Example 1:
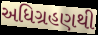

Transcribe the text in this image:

અધિગ્રહણથી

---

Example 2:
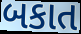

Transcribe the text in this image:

બકાત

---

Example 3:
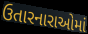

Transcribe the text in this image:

ઉતારનારાઓમાં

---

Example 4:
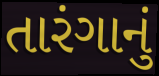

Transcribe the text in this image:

તારંગાનું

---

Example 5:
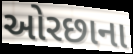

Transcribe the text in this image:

ઓરછાના